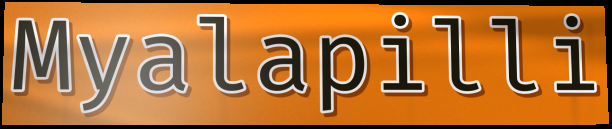
Myalapilli